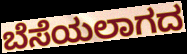
ಬೆಸೆಯಲಾಗದ